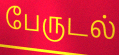
பேருடல்